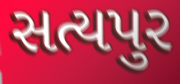
સત્યપુર